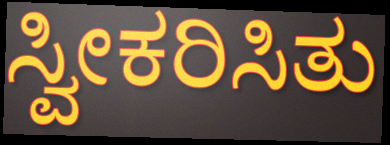
ಸ್ವೀಕರಿಸಿತು